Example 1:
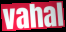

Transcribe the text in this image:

vahal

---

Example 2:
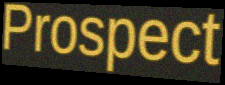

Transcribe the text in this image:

Prospect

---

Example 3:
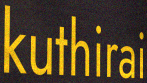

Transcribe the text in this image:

kuthirai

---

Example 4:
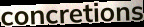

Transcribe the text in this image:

concretions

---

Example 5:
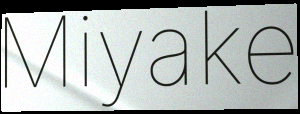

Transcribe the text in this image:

Miyake